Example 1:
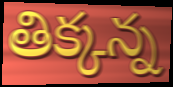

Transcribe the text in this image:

తిక్కన్న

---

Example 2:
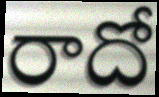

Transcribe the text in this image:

రాదో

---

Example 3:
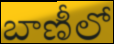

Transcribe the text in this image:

బాణీలో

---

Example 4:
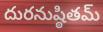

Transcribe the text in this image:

దురనుష్ఠితమ్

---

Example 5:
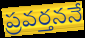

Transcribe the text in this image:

ప్రవర్తననే